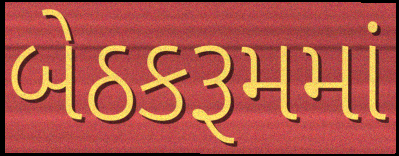
બેઠકરૂમમાં